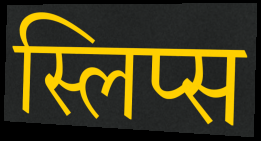
स्लिप्स